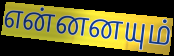
என்னனயும்